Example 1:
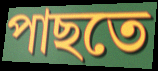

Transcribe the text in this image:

পাছতে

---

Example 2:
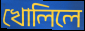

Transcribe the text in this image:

খোলিলে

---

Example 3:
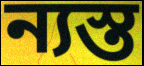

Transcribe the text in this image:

ন্যস্ত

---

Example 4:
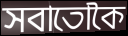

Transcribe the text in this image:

সবাতোকৈ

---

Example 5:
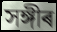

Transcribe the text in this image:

সঙ্গীৰ